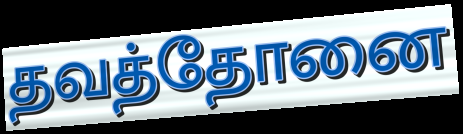
தவத்தோனை